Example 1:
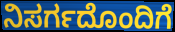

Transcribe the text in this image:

ನಿಸರ್ಗದೊಂದಿಗೆ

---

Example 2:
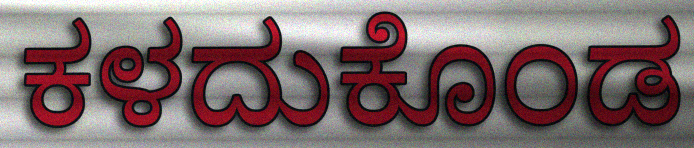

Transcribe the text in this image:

ಕಳದುಕೊಂಡ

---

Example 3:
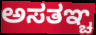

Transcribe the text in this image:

ಅಸತಞ್ಚ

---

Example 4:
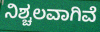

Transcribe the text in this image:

ನಿಶ್ಚಲವಾಗಿವೆ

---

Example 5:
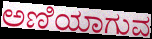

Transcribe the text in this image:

ಅಣಿಯಾಗುವ